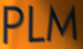
PLM